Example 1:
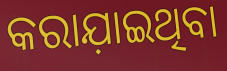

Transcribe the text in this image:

କରାଯ଼ାଇଥିବା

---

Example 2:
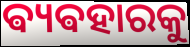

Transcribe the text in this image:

ଵ୍ୟଵହାରକୁ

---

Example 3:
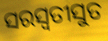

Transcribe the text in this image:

ସରସ୍ୱତୀସୁତ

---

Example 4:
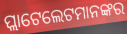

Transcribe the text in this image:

ପ୍ଲାଟେଲେଟମାନଙ୍କର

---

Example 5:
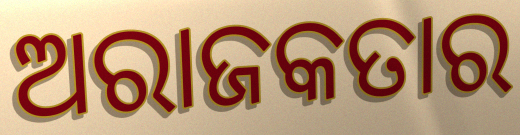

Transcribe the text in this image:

ଅରାଜକତାର